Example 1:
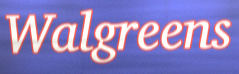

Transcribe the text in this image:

Walgreens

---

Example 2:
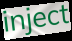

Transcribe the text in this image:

inject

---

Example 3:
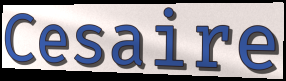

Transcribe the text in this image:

Cesaire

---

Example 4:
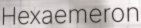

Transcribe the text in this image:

Hexaemeron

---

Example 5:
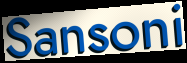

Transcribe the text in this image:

Sansoni